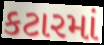
કટારમાં